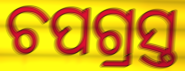
ଚପଗ୍ରସ୍ତ